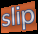
slip